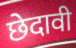
छेदावी